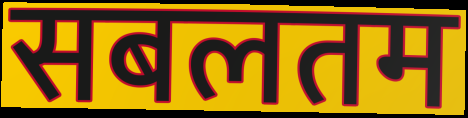
सबलतम